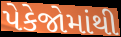
પેકેજોમાંથી